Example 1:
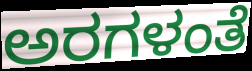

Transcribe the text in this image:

ಅರಗಳಂತೆ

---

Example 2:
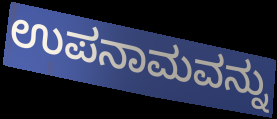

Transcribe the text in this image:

ಉಪನಾಮವನ್ನು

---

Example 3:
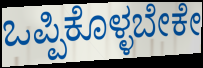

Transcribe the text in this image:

ಒಪ್ಪಿಕೊಳ್ಳಬೇಕೇ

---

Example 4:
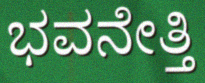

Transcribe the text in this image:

ಭವನೇತ್ತಿ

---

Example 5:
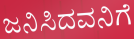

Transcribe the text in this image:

ಜನಿಸಿದವನಿಗೆ